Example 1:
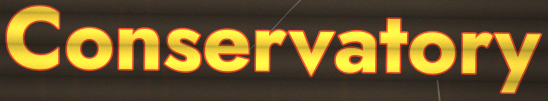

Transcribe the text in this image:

Conservatory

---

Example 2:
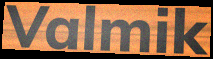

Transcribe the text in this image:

Valmik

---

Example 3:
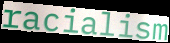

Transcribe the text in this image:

racialism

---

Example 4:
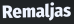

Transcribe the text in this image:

Remaljas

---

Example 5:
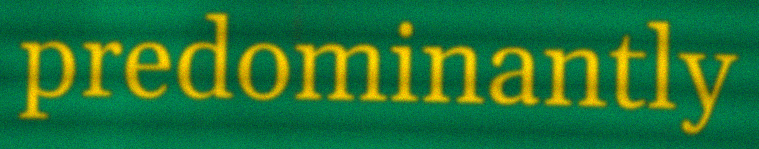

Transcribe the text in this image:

predominantly